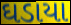
ઘડાયા